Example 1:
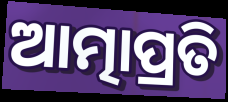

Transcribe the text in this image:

ଆତ୍ମାପ୍ରତି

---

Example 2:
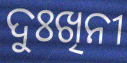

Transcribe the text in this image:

ଦୁଃଖିନୀ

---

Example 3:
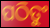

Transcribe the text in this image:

ପଠିତୁଂ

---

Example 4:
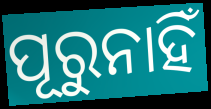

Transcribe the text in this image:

ପୂରୁନାହିଁ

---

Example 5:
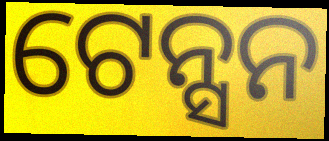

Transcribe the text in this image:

ଟେନ୍ସନ